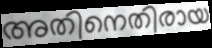
അതിനെതിരായ